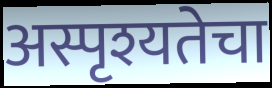
अस्पृश्यतेचा